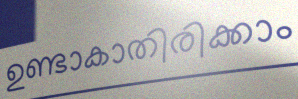
ഉണ്ടാകാതിരിക്കാം